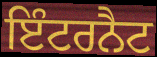
ਇੰਟਰਨੈਟ